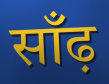
साँढ़